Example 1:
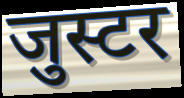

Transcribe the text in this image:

जुस्टर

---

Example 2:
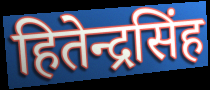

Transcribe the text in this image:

हितेन्द्रसिंह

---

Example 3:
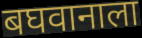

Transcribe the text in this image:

बघवानाला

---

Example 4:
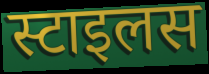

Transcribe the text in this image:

स्टाइलस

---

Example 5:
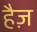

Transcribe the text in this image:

हैज़